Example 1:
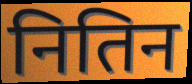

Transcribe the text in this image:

नितिन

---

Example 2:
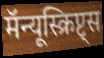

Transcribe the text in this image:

मॅन्यूस्क्रिप्ट्स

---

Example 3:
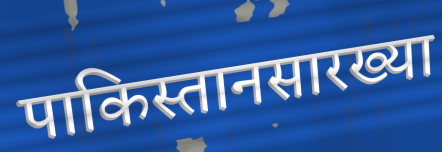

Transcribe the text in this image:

पाकिस्तानसारख्या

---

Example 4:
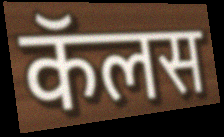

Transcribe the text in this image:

कॅलस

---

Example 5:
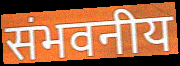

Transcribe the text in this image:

संभवनीय